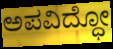
ಅಪವಿದ್ಧೋ